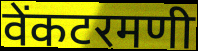
वेंकटरमणी